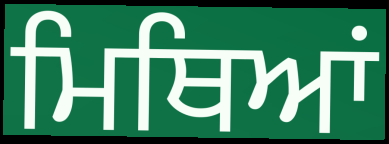
ਮਿਥਿਆਂ